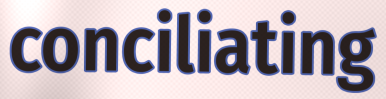
conciliating